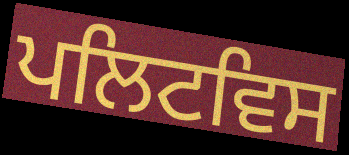
ਪਲਿਟਵਿਸ